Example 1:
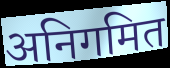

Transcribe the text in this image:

अनिगमित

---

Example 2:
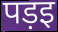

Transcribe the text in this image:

पड़इ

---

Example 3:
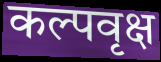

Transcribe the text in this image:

कल्‍पवृक्ष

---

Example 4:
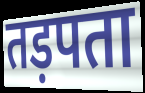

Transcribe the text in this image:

तड़पता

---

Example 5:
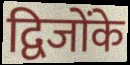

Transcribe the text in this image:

द्विजोंके